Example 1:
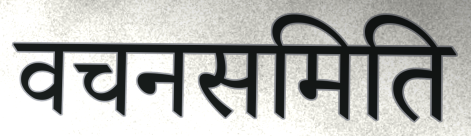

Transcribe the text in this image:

वचनसमिति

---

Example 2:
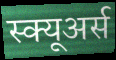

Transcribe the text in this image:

स्क्यूअर्स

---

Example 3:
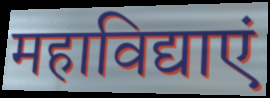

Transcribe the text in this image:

महाविद्याएं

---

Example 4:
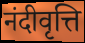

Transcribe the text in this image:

नंदीवृत्ति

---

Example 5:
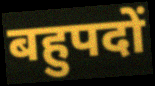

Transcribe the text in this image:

बहुपदों